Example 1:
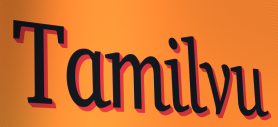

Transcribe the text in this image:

Tamilvu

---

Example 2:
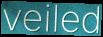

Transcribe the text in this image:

veiled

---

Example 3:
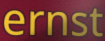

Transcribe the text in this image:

ernst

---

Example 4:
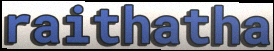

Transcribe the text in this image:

raithatha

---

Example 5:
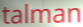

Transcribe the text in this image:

talman